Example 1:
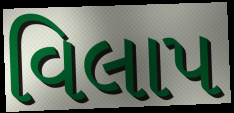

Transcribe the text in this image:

વિલાપ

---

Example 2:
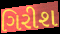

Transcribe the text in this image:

ગિરીશ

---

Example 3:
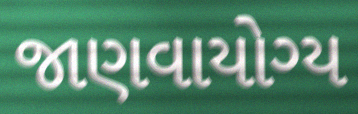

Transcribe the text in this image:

જાણવાયોગ્ય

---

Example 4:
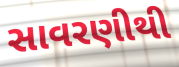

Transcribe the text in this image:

સાવરણીથી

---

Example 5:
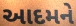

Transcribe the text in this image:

આદમને